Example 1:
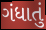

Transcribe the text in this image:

ગંધાતું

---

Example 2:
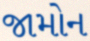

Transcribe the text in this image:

જામોન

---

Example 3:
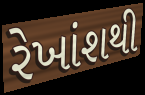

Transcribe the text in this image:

રેખાંશથી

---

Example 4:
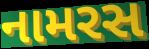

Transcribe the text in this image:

નામરસ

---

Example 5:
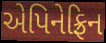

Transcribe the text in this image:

એપિનેફ્રિન